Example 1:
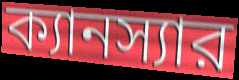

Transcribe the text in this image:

ক্যানস্যার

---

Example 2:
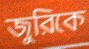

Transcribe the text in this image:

জুরিকে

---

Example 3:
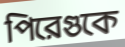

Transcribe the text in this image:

পিরেগুকে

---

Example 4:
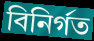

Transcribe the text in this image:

বিনির্গত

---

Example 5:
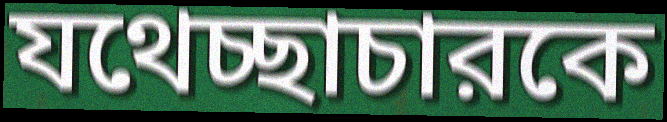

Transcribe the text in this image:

যথেচ্ছাচারকে